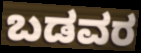
ಬಡವರ